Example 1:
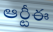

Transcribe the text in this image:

ఆర్టీఈ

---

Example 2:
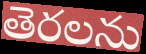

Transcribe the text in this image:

తెరలను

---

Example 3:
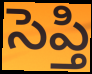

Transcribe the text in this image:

సెప్తి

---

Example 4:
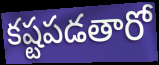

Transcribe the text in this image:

కష్టపడతారో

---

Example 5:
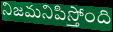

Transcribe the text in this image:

నిజమనిపిస్తోంది